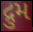
દ્રુમ